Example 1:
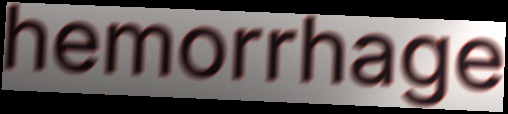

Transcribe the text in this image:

hemorrhage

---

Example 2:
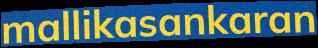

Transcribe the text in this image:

mallikasankaran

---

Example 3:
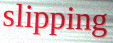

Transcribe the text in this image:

slipping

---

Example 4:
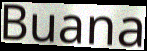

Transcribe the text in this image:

Buana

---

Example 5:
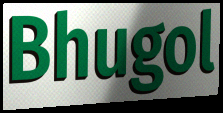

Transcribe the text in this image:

Bhugol